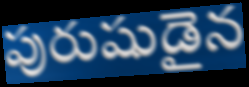
పురుషుడైన